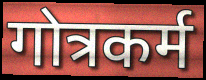
गोत्रकर्म